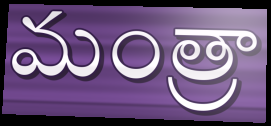
మంత్రా